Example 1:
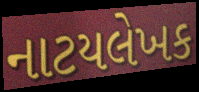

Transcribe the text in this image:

નાટયલેખક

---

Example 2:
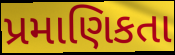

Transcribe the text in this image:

પ્રમાણિકતા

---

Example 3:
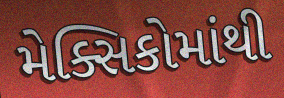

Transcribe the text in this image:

મેક્સિકોમાંથી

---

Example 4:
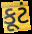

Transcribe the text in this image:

કૂટં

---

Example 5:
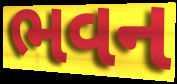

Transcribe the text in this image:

ભવન